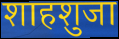
शाहशुजा